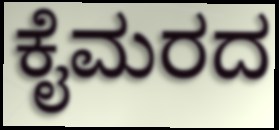
ಕೈಮರದ